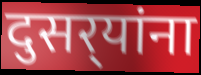
दुसर्‍यांना